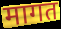
मागत